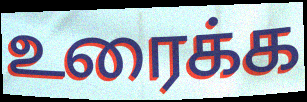
உரைக்க